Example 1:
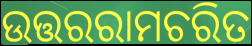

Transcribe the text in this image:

ଉତ୍ତରରାମଚରିତ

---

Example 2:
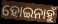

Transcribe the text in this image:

ହୋଇନାହୁଁ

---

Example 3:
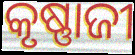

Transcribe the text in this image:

କୃଷ୍ଣାଜୀ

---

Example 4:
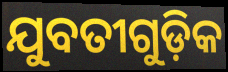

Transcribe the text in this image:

ଯୁବତୀଗୁଡ଼ିକ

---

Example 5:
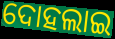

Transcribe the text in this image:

ଦୋହଲାଇ